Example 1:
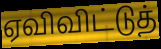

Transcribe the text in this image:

ஏவிவிட்டுத்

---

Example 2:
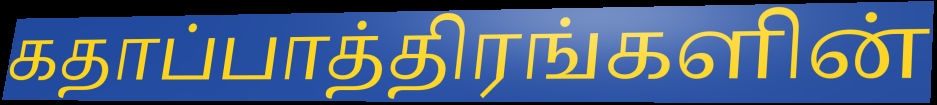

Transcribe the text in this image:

கதாப்பாத்திரங்களின்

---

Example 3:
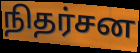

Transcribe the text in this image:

நிதர்சன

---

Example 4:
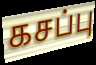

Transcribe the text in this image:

கசப்பு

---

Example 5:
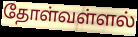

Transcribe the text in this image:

தோள்வள்ளல்